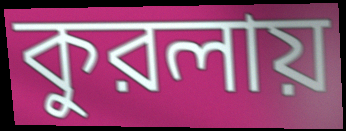
কুরলায়